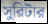
সুরিটার